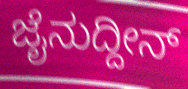
ಜೈನುದ್ದೀನ್